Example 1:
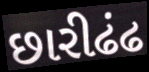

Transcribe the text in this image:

છારીઢંઢ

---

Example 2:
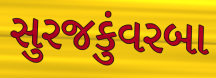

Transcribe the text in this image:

સુરજકુંવરબા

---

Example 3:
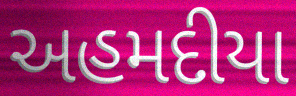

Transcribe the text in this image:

અહમદીયા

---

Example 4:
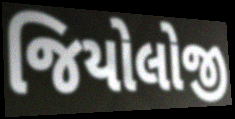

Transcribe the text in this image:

જિયોલોજી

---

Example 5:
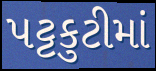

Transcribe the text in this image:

પટ્ટકુટીમાં